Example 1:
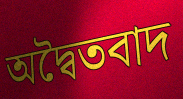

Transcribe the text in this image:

অদ্বৈতবাদ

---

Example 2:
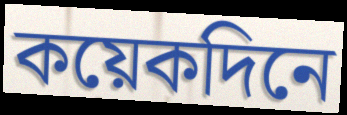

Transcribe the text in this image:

কয়েকদিনে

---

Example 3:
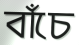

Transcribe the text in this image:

বাঁচে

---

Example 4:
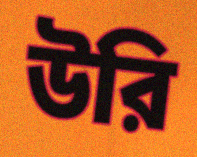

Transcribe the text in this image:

উরি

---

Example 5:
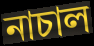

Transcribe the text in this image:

নাচাল